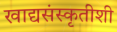
खाद्यसंस्कृतीशी